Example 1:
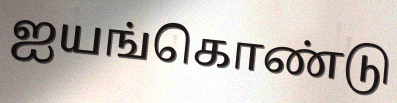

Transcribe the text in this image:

ஐயங்கொண்டு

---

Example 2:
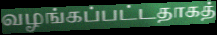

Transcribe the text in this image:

வழங்கப்பட்டதாகத்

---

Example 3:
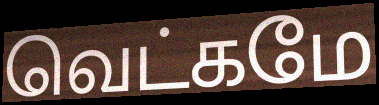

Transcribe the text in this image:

வெட்கமே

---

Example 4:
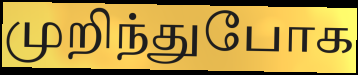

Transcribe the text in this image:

முறிந்துபோக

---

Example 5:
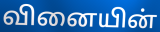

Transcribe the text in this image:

வினையின்